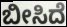
ಬೀಸಿದೆ